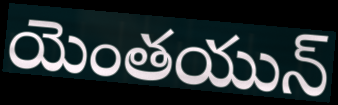
యెంతయున్